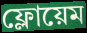
ফ্লোয়েম